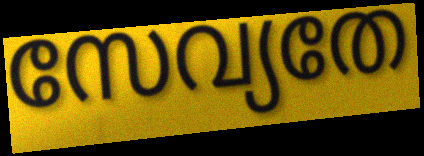
സേവ്യതേ